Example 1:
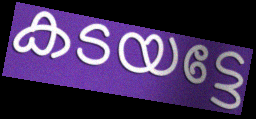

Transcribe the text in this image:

കടയട്ടേ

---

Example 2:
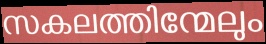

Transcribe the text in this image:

സകലത്തിന്മേലും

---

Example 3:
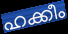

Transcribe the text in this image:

ഹക്കീം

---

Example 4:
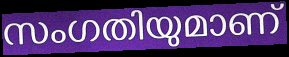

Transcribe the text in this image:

സംഗതിയുമാണ്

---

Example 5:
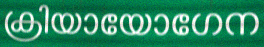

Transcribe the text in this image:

ക്രിയായോഗേന